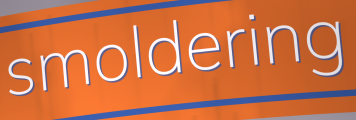
smoldering